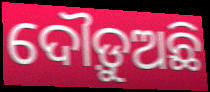
ଦୌଡ଼ୁଅଛି